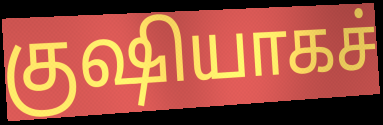
குஷியாகச்